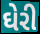
ઘેરી